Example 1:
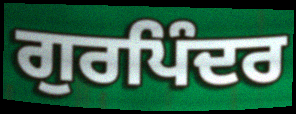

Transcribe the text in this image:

ਗੁਰਪਿੰਦਰ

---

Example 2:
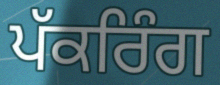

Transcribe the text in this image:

ਪੱਕਰਿੰਗ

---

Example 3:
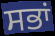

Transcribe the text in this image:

ਸਭਾਂ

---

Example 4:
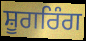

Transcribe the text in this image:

ਸ਼ੂਗਰਿੰਗ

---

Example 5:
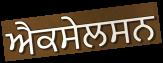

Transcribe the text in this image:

ਐਕਸੇਲਸਨ